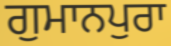
ਗੁਮਾਨਪੁਰਾ